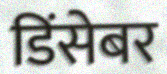
डिंसेबर